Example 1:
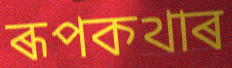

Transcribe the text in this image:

ৰূপকথাৰ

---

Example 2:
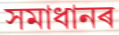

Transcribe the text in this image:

সমাধানৰ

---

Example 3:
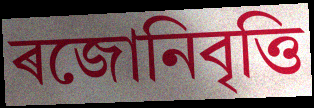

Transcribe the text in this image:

ৰজোনিবৃত্তি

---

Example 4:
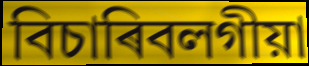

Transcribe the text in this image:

বিচাৰিবলগীয়া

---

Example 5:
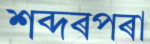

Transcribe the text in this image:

শব্দৰপৰা